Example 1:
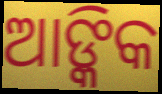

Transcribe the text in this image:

ଆଙ୍କିକ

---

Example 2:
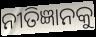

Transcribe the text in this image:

ନୀତିଜ୍ଞାନକୁ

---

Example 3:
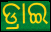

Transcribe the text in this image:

ଡ୍ରାଇ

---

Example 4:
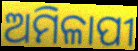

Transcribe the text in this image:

ଅମିଳାପୀ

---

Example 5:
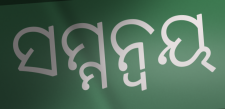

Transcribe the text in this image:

ସମ୍ମନ୍ୱୟ